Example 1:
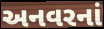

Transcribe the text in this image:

અનવરનાં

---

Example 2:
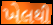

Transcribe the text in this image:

ખેલથી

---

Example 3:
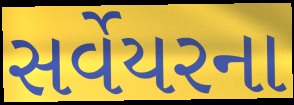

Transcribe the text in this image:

સર્વેયરના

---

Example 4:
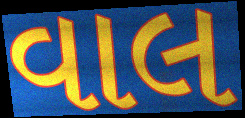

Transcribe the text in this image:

વાલ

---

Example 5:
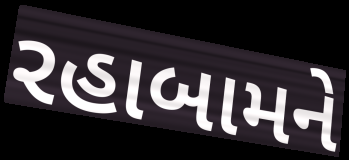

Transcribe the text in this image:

રહાબામને